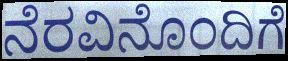
ನೆರವಿನೊಂದಿಗೆ